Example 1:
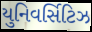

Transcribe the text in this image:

યુનિવર્સિટિઝ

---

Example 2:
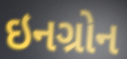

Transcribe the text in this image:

ઇનગ્રોન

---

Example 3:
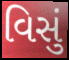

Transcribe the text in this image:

વિસું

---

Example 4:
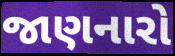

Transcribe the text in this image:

જાણનારો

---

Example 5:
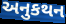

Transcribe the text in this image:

અનુકથન